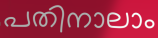
പതിനാലാം